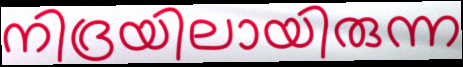
നിദ്രയിലായിരുന്ന